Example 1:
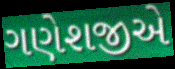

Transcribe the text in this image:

ગણેશજીએ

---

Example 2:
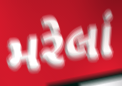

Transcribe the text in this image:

મરેલાં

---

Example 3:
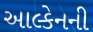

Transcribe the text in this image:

આલ્કેનની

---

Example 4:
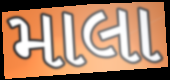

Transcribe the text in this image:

માલા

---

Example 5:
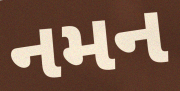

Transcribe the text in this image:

નમન